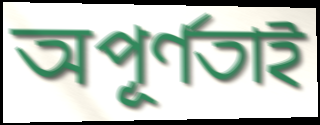
অপূর্ণতাই